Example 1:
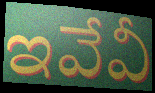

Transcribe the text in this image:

ఇవేవీ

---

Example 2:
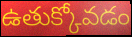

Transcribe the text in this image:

ఉతుక్కోవడం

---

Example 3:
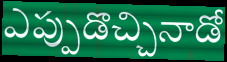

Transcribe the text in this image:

ఎప్పుడొచ్చినాడో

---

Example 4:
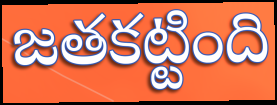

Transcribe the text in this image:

జతకట్టింది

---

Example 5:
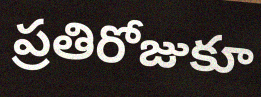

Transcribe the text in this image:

ప్రతిరోజుకూ